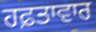
ਹਫ਼ਤਾਵਾਰ